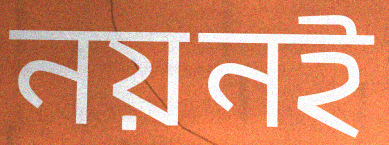
নয়নই